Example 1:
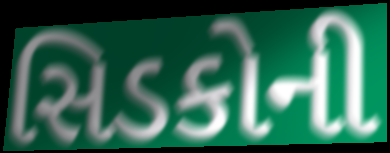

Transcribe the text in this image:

સિડકોની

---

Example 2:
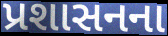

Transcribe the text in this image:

પ્રશાસનના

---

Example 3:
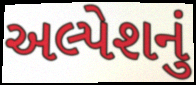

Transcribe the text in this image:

અલ્પેશનું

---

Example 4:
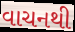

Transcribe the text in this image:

વાચનથી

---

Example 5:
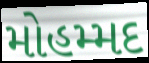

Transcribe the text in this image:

મોહમ્મદ